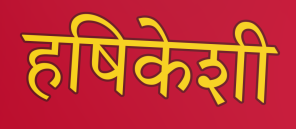
हषिकेशी